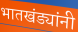
भातखंड्यांनी